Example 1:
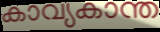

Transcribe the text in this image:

കാവ്യകാന്ത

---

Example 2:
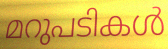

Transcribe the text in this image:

മറുപടികൾ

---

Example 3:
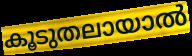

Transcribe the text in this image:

കൂടുതലായാൽ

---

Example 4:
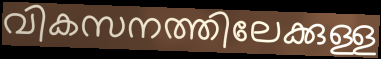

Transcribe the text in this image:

വികസനത്തിലേക്കുള്ള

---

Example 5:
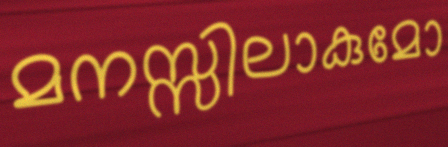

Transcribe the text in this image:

മനസ്സിലാകുമോ